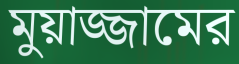
মুয়াজ্জামের